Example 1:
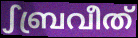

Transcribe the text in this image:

ഽബ്രവീത്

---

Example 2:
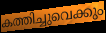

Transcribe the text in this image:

കത്തിച്ചുവെക്കും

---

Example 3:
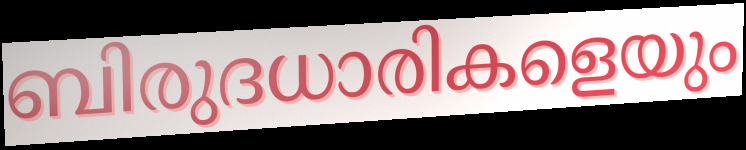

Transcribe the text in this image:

ബിരുദധാരികളെയും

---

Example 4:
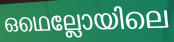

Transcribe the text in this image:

ഒഥെല്ലോയിലെ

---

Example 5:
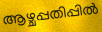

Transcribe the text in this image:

ആഴ്ചപ്പതിപ്പിൽ